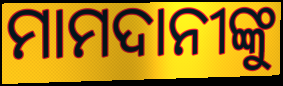
ମାମଦାନୀଙ୍କୁ